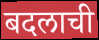
बदलाची